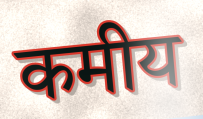
कमीय